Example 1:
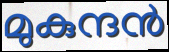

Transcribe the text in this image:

മുകുന്ദൻ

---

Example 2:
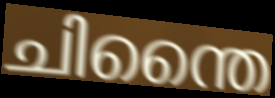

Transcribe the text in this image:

ചിന്തൈ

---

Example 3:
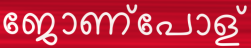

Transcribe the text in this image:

ജോണ്പോള്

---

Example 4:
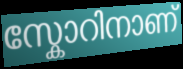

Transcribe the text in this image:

സ്കോറിനാണ്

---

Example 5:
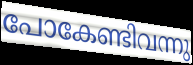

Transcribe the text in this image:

പോകേണ്ടിവന്നു